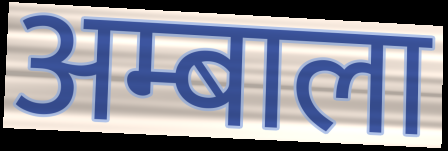
अम्‍बाला